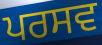
ਪਰਸਵ